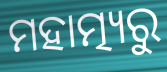
ମହାତ୍ମ୍ୟରୁ